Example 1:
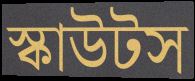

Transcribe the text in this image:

স্কাউটস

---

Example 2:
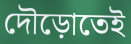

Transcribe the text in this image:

দৌড়োতেই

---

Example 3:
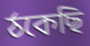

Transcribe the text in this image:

ঠকেছি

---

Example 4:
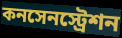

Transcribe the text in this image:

কনসেনস্ট্রেশন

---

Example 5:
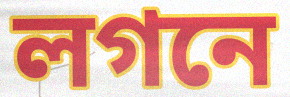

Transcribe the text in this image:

লগনে